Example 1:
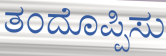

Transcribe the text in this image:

ತಂದೊಪ್ಪಿಸು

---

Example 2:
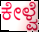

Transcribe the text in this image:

ಕೇಳ್ವೆ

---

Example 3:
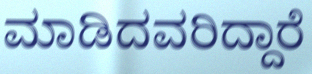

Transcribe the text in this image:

ಮಾಡಿದವರಿದ್ದಾರೆ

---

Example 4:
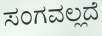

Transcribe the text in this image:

ಸಂಗವಲ್ಲದೆ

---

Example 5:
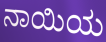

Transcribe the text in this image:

ನಾಯಿಯ